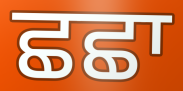
ਛਛਾ